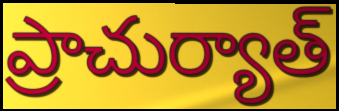
ప్రాచుర్యాత్